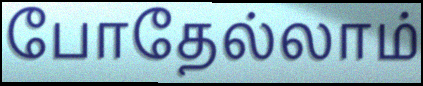
போதேல்லாம்